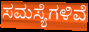
ಸಮಸ್ಯೆಗಳಿವೆ